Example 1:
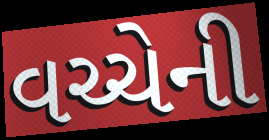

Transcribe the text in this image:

વચ્ચેની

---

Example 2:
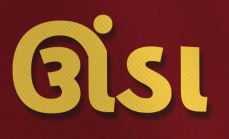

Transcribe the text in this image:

ઊંડા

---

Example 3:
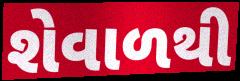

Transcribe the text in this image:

શેવાળથી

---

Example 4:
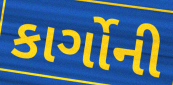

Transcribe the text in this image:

કાર્ગોની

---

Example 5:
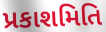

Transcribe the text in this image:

પ્રકાશમિતિ